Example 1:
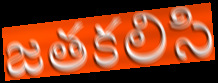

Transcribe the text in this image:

జతకలిసి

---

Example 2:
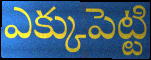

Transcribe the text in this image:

ఎక్కుపెట్టి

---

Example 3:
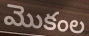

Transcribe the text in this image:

మొకంల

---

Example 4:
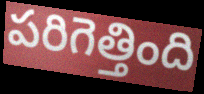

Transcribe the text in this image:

పరిగెత్తింది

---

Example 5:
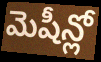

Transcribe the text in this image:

మెషీన్లో